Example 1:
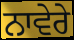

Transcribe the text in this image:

ਨਾਵੇਰੇ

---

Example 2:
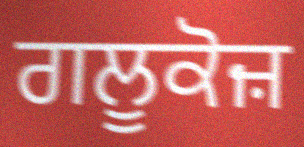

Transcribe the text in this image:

ਗਲੂਕੋਜ਼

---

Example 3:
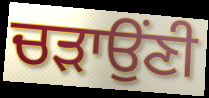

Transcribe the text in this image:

ਚੜਾਉਂਣੀ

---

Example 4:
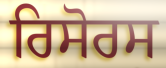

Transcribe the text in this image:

ਰਿਸੋਰਸ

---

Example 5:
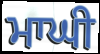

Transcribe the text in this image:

ਮਾਘੀ